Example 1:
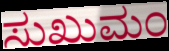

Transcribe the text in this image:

ಸುಖುಮಂ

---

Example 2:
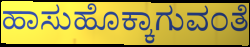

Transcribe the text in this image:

ಹಾಸುಹೊಕ್ಕಾಗುವಂತೆ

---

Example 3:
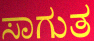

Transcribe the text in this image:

ಸಾಗುತ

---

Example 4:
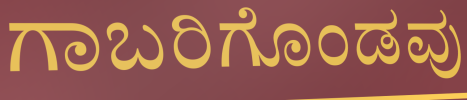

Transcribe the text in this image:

ಗಾಬರಿಗೊಂಡವು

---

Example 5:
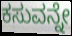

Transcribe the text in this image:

ಕಸುವನ್ನೇ